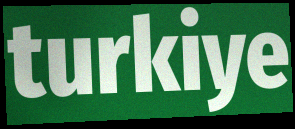
turkiye